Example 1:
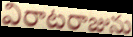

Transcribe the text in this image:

విరాటరాజును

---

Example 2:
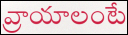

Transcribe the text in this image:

వ్రాయాలంటే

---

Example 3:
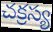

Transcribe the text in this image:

చక్రస్య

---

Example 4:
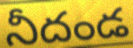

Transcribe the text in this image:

నీదండ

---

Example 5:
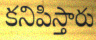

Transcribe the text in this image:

కనిపిస్తారు